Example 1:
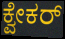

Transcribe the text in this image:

ಕ್ವೇಕರ್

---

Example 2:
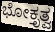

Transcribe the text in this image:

ಭೋಕ್ತೃತ್ವ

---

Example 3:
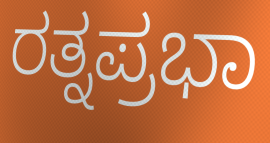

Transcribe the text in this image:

ರತ್ನಪ್ರಭಾ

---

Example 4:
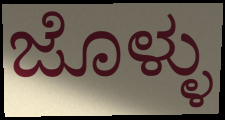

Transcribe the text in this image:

ಜೊಳ್ಳು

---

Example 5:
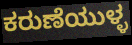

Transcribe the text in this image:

ಕರುಣೆಯುಳ್ಳ